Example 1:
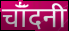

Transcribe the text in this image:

चॉँदनी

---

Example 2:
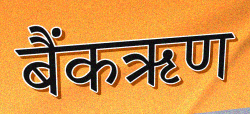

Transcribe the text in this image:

बैंकऋण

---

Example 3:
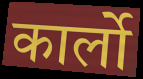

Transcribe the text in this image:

कार्लो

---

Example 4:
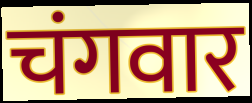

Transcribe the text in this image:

चंगवार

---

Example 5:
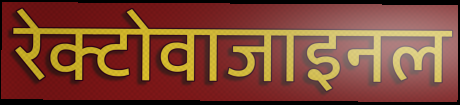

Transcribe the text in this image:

रेक्टोवाजाइनल